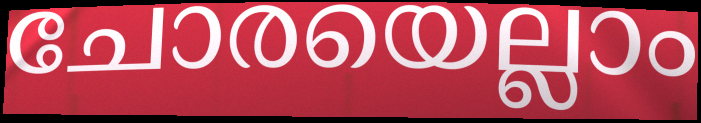
ചോരയെല്ലാം